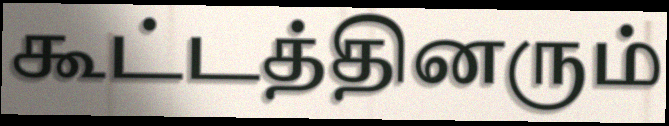
கூட்டத்தினரும்